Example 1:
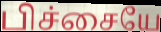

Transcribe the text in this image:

பிச்சையே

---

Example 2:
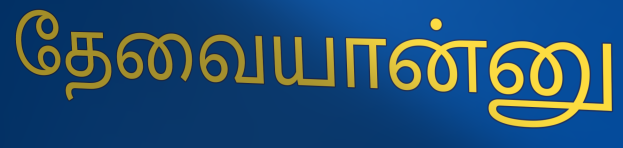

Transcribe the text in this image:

தேவையான்னு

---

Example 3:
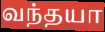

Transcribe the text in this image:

வந்தயா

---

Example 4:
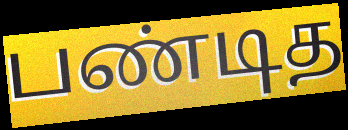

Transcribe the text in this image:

பண்டித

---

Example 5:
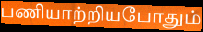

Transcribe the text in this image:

பணியாற்றியபோதும்